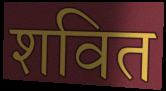
शवित